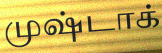
முஷ்டாக்